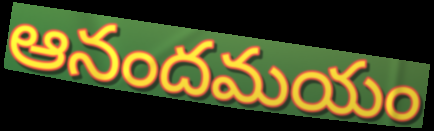
ఆనందమయం